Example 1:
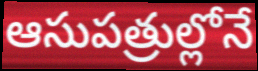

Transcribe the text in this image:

ఆసుపత్రుల్లోనే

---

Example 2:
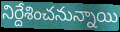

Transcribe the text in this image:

నిర్దేశించనున్నాయి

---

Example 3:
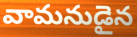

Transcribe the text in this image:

వామనుడైన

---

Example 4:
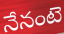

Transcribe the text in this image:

నేనంటె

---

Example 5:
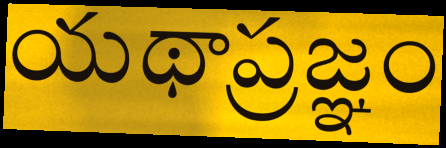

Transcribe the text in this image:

యథాప్రజ్ఞం